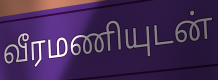
வீரமணியுடன்